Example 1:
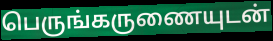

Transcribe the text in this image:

பெருங்கருணையுடன்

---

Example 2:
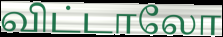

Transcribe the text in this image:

விட்டாலோ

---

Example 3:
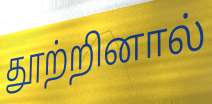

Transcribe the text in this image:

தூற்றினால்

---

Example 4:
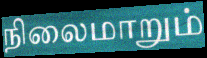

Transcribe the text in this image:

நிலைமாறும்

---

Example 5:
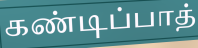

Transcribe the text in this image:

கண்டிப்பாத்